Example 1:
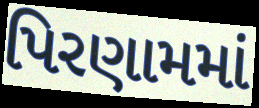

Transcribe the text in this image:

પિરણામમાં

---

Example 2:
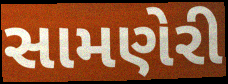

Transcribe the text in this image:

સામણેરી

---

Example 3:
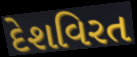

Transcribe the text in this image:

દેશવિરત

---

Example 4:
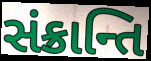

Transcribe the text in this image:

સંક્રાન્તિ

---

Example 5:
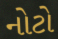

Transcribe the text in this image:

નોટો